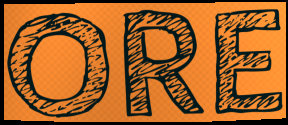
ORE